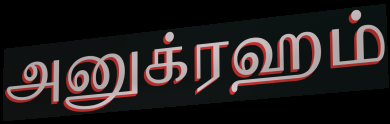
அனுக்ரஹம்